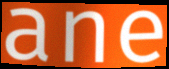
ane